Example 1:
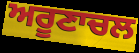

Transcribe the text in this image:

ਅਰੂਣਾਚਲ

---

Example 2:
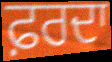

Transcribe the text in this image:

ਫ਼ਰਦਾ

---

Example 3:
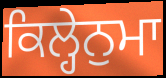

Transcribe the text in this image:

ਕਿਲ੍ਹੇਨੁਮਾ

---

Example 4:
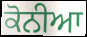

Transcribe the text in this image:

ਕੋਨੀਆ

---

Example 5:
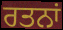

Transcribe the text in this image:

ਰਤਨਾਂ